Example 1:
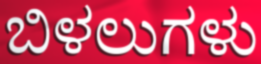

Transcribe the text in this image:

ಬಿಳಲುಗಳು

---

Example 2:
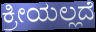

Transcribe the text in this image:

ಕ್ರೀಯಲ್ಲದೆ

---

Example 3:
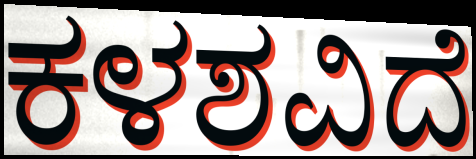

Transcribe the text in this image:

ಕಳಶವಿದೆ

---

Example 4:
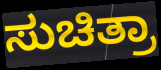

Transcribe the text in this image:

ಸುಚಿತ್ರಾ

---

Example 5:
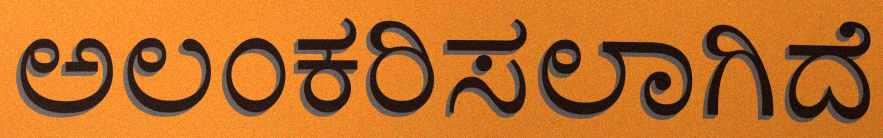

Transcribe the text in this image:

ಅಲಂಕರಿಸಲಾಗಿದೆ